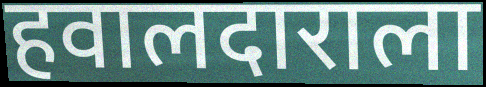
हवालदाराला